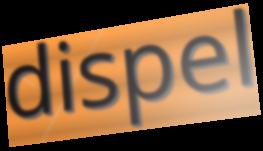
dispel